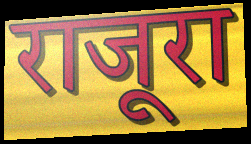
राजूरा